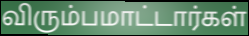
விரும்பமாட்டார்கள்